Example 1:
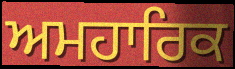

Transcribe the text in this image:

ਅਮਹਾਰਿਕ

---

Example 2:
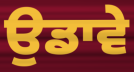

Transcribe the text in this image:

ਉਡਾਵੇ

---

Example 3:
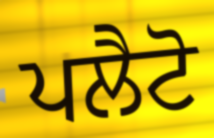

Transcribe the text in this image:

ਪਲੈਟੋ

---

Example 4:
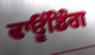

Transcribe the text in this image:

ਫਾਊਂਡਿੰਗ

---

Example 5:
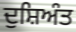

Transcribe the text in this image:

ਦੁਸ਼ਿਅੰਤ